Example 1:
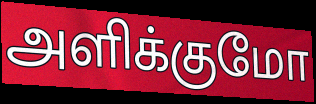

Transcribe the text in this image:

அளிக்குமோ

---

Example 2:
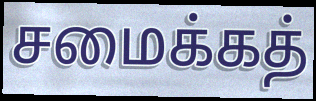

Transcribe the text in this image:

சமைக்கத்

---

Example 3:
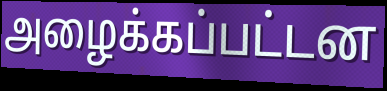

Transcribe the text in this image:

அழைக்கப்பட்டன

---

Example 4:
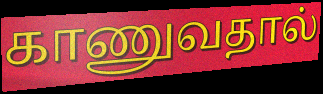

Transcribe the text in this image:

காணுவதால்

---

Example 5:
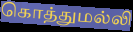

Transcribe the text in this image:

கொத்துமல்லி